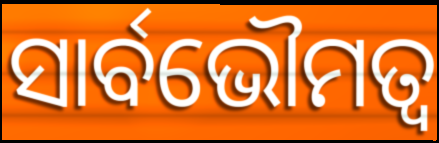
ସାର୍ବଭୌମତ୍ବ